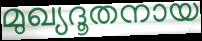
മുഖ്യദൂതനായ